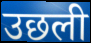
उछली